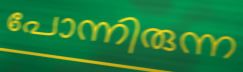
പോന്നിരുന്ന